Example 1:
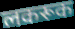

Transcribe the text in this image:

लकरूक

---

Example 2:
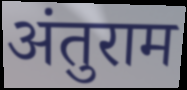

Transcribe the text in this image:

अंतुराम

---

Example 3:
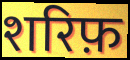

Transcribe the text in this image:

शरिफ़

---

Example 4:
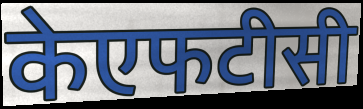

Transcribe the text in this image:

केएफटीसी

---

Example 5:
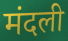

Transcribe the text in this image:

मंदली